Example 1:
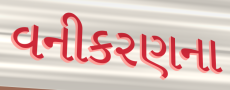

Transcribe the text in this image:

વનીકરણના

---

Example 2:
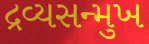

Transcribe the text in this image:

દ્રવ્યસન્મુખ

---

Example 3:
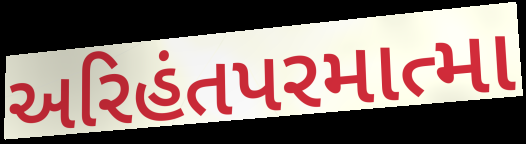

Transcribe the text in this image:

અરિહંતપરમાત્મા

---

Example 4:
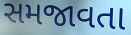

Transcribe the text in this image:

સમજાવતા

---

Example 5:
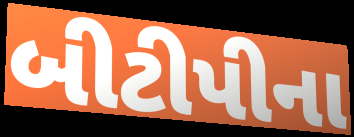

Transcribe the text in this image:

બીટીપીના